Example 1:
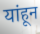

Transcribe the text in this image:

यांहून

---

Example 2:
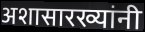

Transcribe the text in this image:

अशासारख्यांनी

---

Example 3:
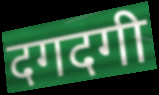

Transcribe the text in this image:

दगदगी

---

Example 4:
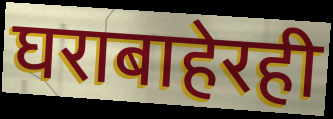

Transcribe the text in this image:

घराबाहेरही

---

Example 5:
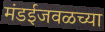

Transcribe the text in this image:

मंडईजवळच्या